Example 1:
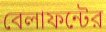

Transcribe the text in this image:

বেলাফন্টের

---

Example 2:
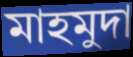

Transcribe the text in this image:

মাহমুদা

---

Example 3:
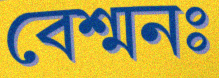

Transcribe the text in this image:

বেশ্মনঃ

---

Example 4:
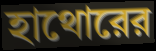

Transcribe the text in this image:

হাথোরের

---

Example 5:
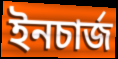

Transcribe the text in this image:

ইনচার্জ